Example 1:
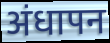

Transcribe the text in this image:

अंधापन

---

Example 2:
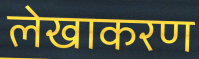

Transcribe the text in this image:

लेखाकरण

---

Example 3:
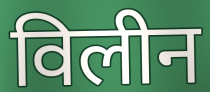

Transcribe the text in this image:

विलीन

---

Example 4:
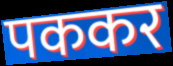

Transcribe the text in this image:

पककर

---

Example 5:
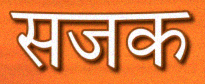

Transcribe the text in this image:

सजक